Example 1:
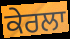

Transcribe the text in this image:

ਕੇਰਲਾ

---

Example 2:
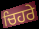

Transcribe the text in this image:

ਚਿਹਰੇ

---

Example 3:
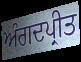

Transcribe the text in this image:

ਅੰਗਦਪ੍ਰੀਤ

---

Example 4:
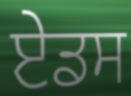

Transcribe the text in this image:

ਏਡਸ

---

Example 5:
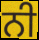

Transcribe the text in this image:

ਨੀ